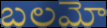
బలమో